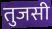
तुजसी